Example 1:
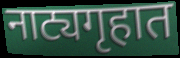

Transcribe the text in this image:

नाट्यगृहात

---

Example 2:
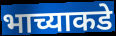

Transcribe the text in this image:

भाच्याकडे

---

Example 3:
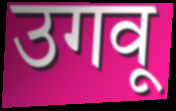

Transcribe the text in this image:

उगवू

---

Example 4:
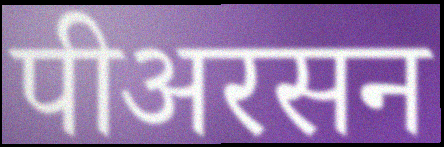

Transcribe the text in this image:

पीअरसन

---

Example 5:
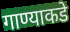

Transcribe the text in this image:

गाण्याकडे